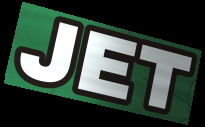
JET